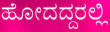
ಹೋದದ್ದರಲ್ಲಿ